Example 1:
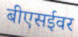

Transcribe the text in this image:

बीएसईवर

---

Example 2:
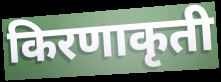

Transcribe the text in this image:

किरणाकृती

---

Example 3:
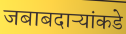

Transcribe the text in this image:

जबाबदाऱ्यांकडे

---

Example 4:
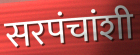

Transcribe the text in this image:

सरपंचांशी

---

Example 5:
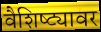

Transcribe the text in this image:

वैशिष्ट्यावर